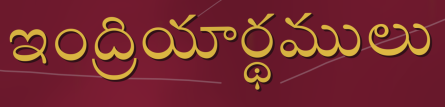
ఇంద్రియార్థములు